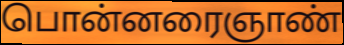
பொன்னரைஞாண்